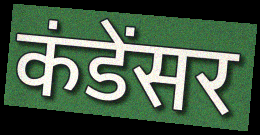
कंडेंसर